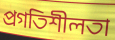
প্রগতিশীলতা